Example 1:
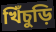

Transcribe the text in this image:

খিঁচুড়ি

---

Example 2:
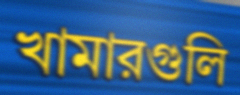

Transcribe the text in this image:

খামারগুলি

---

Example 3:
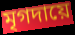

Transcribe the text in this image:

মৃগদায়ে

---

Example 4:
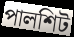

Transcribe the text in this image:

পালশিট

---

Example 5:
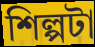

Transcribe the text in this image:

শিল্পটা